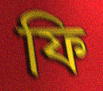
ফি